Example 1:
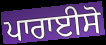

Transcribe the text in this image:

ਪਾਰਾਈਸੋ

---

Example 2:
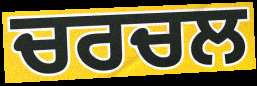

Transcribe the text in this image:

ਚਰਚਲ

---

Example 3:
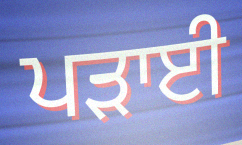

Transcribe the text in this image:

ਪੜਾਈ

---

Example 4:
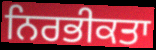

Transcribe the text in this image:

ਨਿਰਭੀਕਤਾ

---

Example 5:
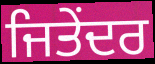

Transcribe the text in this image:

ਜਿਤੇਂਦਰ